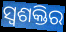
ସ୍ଵଶକ୍ତିର